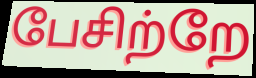
பேசிற்றே